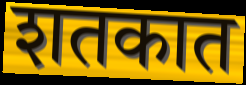
शतकात